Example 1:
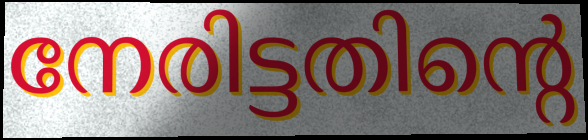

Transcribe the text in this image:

നേരിട്ടതിന്റെ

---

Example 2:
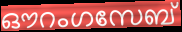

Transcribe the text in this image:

ഔറംഗസേബ്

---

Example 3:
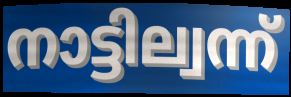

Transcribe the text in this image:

നാട്ടില്വന്ന്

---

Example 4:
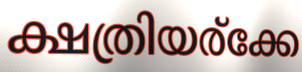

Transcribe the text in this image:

ക്ഷത്രിയര്ക്കേ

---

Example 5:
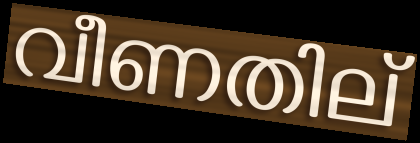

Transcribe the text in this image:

വീണതില്